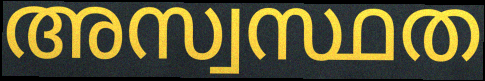
അസ്വസ്ഥത